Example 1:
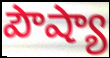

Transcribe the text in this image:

పౌష్యా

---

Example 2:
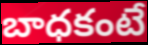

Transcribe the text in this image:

బాధకంటే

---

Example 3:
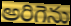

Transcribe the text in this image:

అరిగెను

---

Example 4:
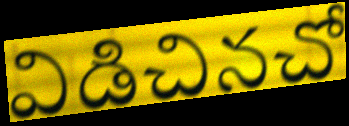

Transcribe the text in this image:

విడిచినచో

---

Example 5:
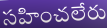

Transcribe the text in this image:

సహించలేరు